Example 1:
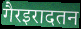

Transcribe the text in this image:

गैरइरादतन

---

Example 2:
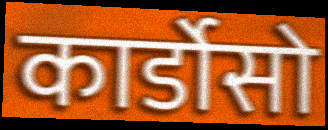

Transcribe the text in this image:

कार्डोसो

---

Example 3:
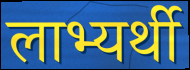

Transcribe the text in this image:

लाभ्यर्थी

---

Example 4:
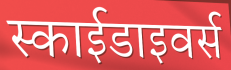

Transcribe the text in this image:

स्काईडाइवर्स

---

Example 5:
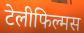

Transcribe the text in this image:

टेलीफिल्मस